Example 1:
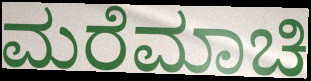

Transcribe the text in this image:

ಮರೆಮಾಚಿ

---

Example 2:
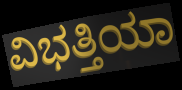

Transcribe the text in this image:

ವಿಭತ್ತಿಯಾ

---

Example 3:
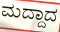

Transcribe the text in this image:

ಮದ್ದಾದ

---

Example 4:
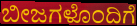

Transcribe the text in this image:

ಬೀಜಗಳೊಂದಿಗೆ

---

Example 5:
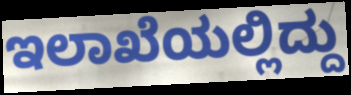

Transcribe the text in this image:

ಇಲಾಖೆಯಲ್ಲಿದ್ದು